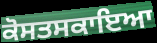
ਕੋਸਤਸਕਾਇਆ